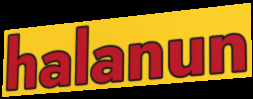
halanun